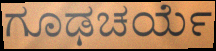
ಗೂಢಚರ್ಯೆ